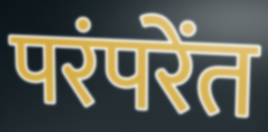
परंपरेंत